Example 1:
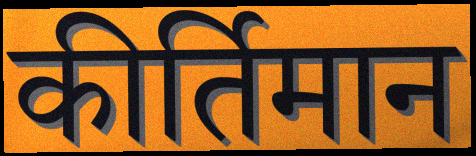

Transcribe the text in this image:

कीर्तिमान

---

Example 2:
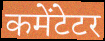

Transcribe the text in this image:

कमेंटेटर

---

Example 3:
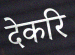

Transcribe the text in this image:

देकरि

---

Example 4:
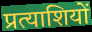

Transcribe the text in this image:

प्रत्‍याशियों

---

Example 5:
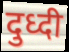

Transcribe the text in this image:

दुध्दी